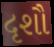
દૃશૌ